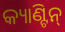
କ୍ୟାଣ୍ଟିନ୍